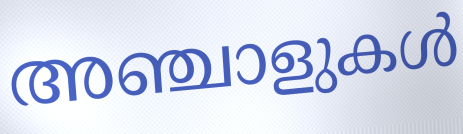
അഞ്ചാളുകൾ